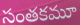
సంతకమూ